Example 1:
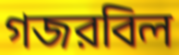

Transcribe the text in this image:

গজরবিল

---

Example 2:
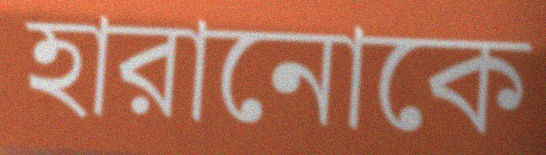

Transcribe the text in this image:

হারানোকে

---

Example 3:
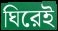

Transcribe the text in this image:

ঘিরেই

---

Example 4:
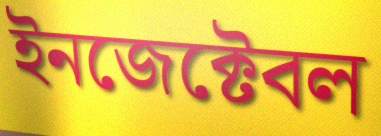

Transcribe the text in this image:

ইনজেক্টেবল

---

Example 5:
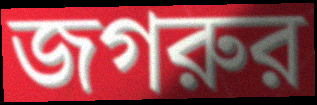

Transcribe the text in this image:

জগরুর